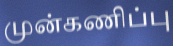
முன்கணிப்பு